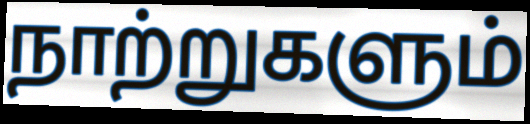
நாற்றுகளும்